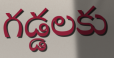
గడ్డలకు